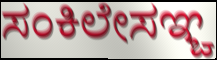
ಸಂಕಿಲೇಸಞ್ಚ